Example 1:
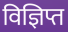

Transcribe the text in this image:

विज्ञिप्त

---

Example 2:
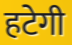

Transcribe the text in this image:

हटेगी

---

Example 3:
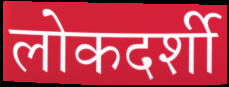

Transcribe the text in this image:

लोकदर्शी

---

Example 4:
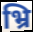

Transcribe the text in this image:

भ्रि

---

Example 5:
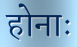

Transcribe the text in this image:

होनाः